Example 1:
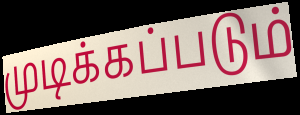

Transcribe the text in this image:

முடிக்கப்படும்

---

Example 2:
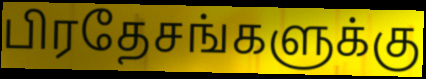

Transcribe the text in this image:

பிரதேசங்களுக்கு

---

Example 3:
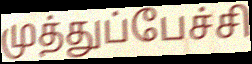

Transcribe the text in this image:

முத்துப்பேச்சி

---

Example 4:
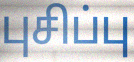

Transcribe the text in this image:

புசிப்பு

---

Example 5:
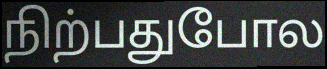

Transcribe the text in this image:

நிற்பதுபோல